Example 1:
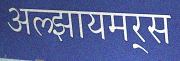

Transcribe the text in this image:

अल्झायमर्स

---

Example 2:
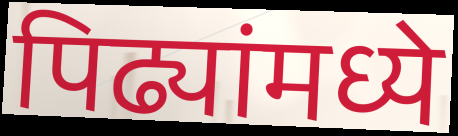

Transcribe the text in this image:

पिढ्यांमध्ये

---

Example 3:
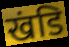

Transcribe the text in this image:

खंडि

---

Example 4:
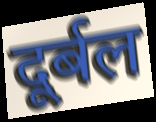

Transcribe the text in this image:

दूर्बल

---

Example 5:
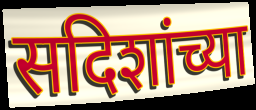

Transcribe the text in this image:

सदिशांच्या